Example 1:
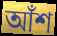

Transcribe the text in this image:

আঁশ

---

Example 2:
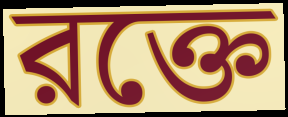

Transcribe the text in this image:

রক্তে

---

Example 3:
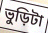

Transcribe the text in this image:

ভুড়িটা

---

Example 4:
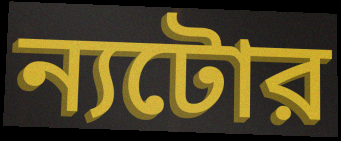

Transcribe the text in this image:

ন্যটোর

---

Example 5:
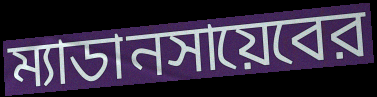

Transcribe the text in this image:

ম্যাডানসায়েবের